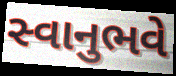
સ્વાનુભવે